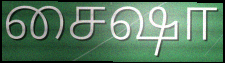
சைஷா